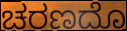
ಚರಣದೊ